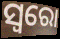
ସ୍ୱରୋ